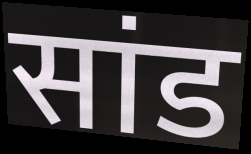
सांड